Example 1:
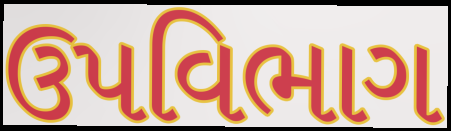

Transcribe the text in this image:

ઉપવિભાગ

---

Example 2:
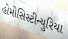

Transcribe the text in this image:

હોમોસિસ્ટીન્યુરિયા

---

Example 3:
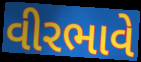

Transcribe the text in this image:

વીરભાવે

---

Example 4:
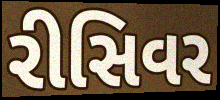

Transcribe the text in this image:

રીસિવર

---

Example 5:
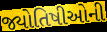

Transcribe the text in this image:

જ્યોતિષીઓની